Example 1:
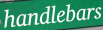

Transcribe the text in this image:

handlebars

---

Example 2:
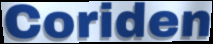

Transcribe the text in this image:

Coriden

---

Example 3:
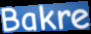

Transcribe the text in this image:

Bakre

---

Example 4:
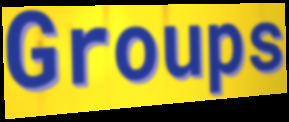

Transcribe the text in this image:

Groups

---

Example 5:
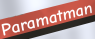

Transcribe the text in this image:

Paramatman